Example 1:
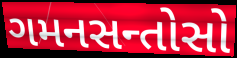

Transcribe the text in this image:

ગમનસન્તોસો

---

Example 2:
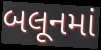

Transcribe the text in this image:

બલૂનમાં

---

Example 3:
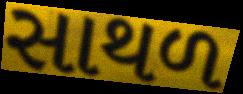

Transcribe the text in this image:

સાથળ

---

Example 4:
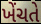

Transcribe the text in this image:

ખેંચતે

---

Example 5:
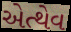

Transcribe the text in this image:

એત્થેવ